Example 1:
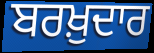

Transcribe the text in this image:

ਬਰਖ਼ੁਦਾਰ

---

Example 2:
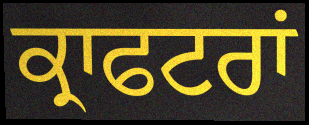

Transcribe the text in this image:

ਕ੍ਰਾਫਟਰਾਂ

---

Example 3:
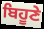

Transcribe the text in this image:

ਬਿਹੂਣੇ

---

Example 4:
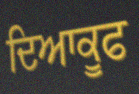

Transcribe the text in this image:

ਦਿਆਕੂਫ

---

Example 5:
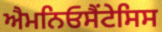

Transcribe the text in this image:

ਐਮਨਿਓਸੈਂਟੇਸਿਸ